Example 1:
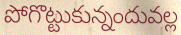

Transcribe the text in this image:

పోగొట్టుకున్నందువల్ల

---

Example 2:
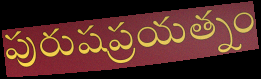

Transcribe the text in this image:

పురుషప్రయత్నం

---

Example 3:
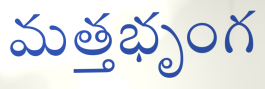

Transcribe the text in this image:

మత్తభృంగ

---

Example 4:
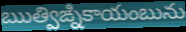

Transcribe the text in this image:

ఋత్విఙ్నికాయంబును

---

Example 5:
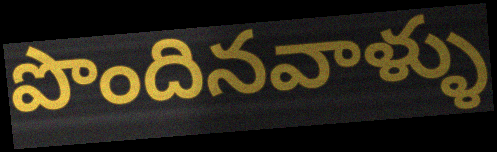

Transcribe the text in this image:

పొందినవాళ్ళు